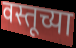
वस्तूच्या